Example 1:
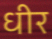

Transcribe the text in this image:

धीर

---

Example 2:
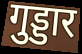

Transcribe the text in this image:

गुड्डार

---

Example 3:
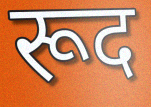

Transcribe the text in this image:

रूद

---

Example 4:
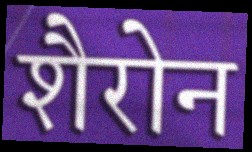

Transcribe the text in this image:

शैरोन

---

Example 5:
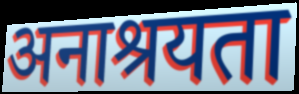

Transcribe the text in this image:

अनाश्रयता